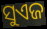
ସୁଏଜ